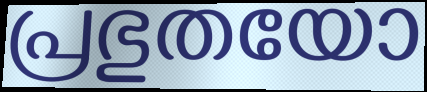
പ്രഭുതയോ